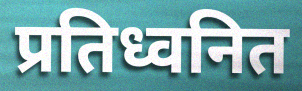
प्रतिध्वनित